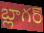
బ్లాగర్